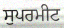
ਸੁਪਰਮੀਟ